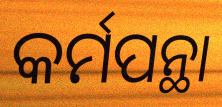
କର୍ମପନ୍ଥା